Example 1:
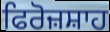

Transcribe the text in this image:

ਫਿਰੋਜ਼ਸ਼ਾਹ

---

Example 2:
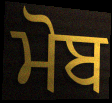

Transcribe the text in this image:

ਮੋਬ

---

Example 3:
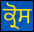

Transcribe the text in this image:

ਕ੍ਰੋਸ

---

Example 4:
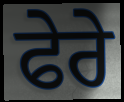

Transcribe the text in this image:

ਫੇਰੇ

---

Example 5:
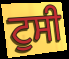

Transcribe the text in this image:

ਟੁਸੀ